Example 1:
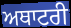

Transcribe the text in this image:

ਅਥਾਟਰੀ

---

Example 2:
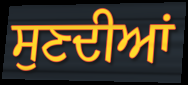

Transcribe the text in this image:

ਸੁਣਦੀਆਂ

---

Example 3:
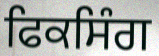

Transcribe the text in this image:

ਫਿਕਸਿੰਗ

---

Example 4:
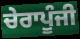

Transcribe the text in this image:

ਚੇਰਾਪੂੰਜੀ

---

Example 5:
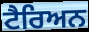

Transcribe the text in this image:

ਟੈਰਿਅਨ